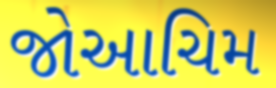
જોઆચિમ